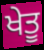
ਖੇਤੂ